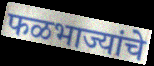
फळभाज्यांचे